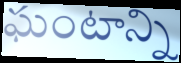
ఘంటాన్ని